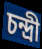
চন্দ্রী